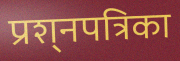
प्रश्नपत्रिका